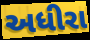
અધીરા